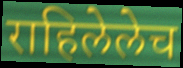
राहिलेलेच